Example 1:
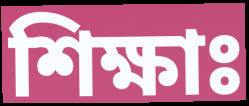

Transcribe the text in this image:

শিক্ষাঃ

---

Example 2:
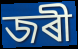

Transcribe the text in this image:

জৰী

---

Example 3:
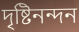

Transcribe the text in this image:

দৃষ্টিনন্দন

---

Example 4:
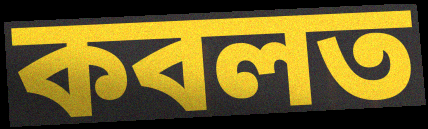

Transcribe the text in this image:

কবলত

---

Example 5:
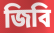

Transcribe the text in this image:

জিবি